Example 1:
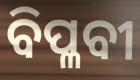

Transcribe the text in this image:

ବିପ୍ଳବୀ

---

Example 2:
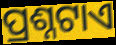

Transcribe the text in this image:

ପ୍ରଶ୍ନଟାଏ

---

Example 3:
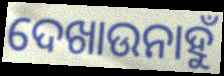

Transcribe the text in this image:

ଦେଖାଉନାହୁଁ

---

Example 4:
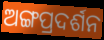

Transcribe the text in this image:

ଅଙ୍ଗପ୍ରଦର୍ଶନ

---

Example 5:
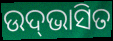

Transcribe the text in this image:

ଉଦ୍‌ଭାସିତ